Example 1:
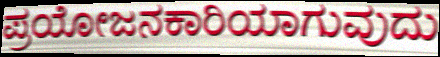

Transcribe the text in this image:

ಪ್ರಯೋಜನಕಾರಿಯಾಗುವುದು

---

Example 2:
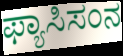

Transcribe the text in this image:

ಫ್ಯಾಸಿಸಂನ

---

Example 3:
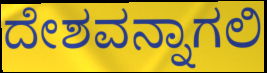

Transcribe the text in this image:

ದೇಶವನ್ನಾಗಲಿ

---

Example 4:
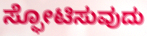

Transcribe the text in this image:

ಸ್ಫೋಟಿಸುವುದು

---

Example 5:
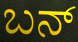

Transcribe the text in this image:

ಬನ್